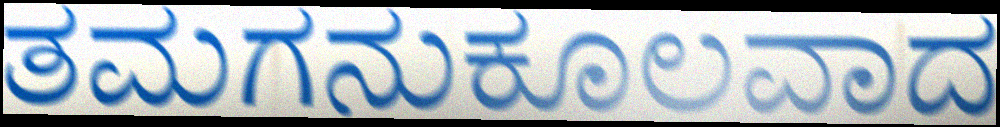
ತಮಗನುಕೂಲವಾದ